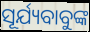
ସୂର୍ଯ୍ୟବାବୁଙ୍କ